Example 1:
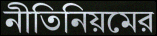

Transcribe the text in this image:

নীতিনিয়মের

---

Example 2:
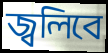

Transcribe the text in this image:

জ্বলিবে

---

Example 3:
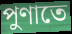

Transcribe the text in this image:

পুণাতে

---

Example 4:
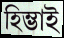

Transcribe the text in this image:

হিম্ভাই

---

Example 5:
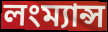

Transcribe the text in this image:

লংম্যান্স